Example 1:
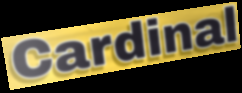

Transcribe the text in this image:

Cardinal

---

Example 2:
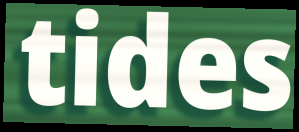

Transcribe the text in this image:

tides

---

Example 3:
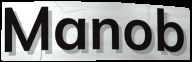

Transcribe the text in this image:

Manob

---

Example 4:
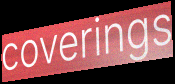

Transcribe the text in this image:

coverings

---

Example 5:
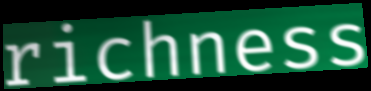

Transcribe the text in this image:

richness